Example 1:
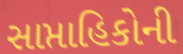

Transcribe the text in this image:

સાપ્તાહિકોની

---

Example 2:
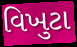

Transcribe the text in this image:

વિખુટા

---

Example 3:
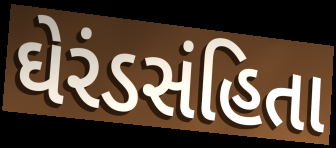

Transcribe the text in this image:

ઘેરંડસંહિતા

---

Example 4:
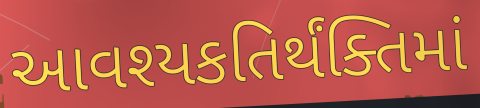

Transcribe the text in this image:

આવશ્યકતિર્થંક્તિમાં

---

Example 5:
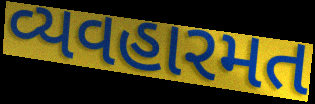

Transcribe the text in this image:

વ્યવહારમત